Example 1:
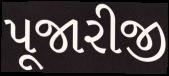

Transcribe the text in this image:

પૂજારીજી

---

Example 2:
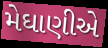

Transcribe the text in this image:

મેઘાણીએ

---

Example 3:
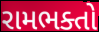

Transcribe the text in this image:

રામભક્તો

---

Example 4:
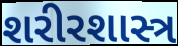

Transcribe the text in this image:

શરીરશાસ્ત્ર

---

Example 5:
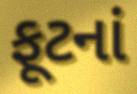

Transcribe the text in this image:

ફૂટનાં